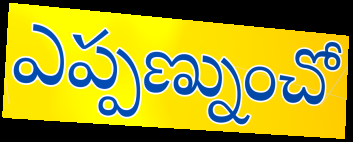
ఎప్పణ్నుంచో